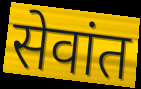
सेवांत